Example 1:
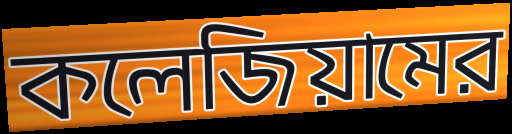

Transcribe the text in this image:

কলেজিয়ামের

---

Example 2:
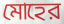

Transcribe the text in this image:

মোহের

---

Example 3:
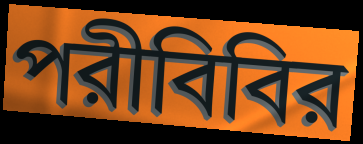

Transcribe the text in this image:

পরীবিবির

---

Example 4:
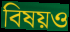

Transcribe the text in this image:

বিষয়ও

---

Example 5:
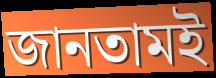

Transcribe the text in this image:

জানতামই